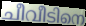
ചീവീടിനെ